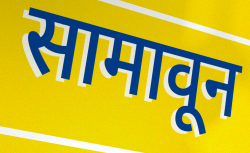
सामावून